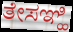
ತೇಸಞ್ಹಿ